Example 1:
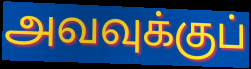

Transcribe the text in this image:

அவவுக்குப்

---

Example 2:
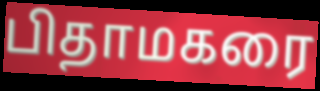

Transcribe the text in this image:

பிதாமகரை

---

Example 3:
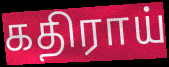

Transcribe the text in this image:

கதிராய்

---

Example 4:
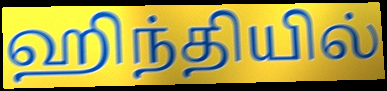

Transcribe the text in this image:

ஹிந்தியில்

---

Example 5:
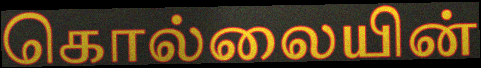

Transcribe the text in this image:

கொல்லையின்